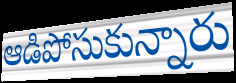
ఆడిపోసుకున్నారు